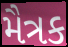
મૈત્રક